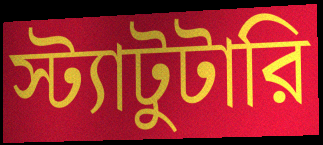
স্ট্যাটুটারি